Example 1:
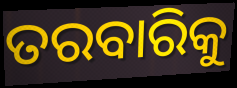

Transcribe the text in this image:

ତରବାରିକୁ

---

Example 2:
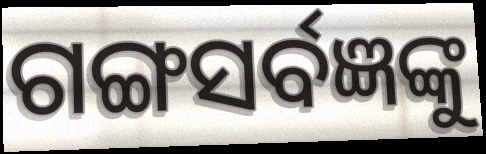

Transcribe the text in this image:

ଗଙ୍ଗସର୍ବଜ୍ଞଙ୍କୁ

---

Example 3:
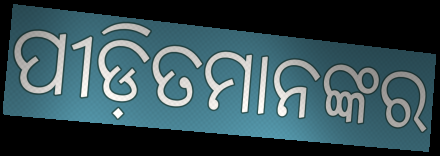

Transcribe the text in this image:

ପୀଡ଼ିତମାନଙ୍କର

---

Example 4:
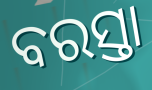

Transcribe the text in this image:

ବରସ୍ତା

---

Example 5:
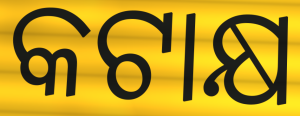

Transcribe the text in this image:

କଟାକ୍ଷ